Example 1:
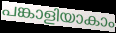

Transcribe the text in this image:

പങ്കാളിയാകാം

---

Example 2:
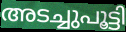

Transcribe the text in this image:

അടച്ചുപൂട്ടി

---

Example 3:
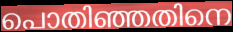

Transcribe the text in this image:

പൊതിഞ്ഞതിനെ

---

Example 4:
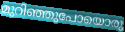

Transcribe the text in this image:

മുറിഞ്ഞുപോയൊരു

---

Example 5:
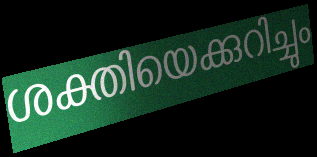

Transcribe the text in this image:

ശക്തിയെക്കുറിച്ചും